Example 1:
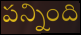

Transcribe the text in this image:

పన్నింది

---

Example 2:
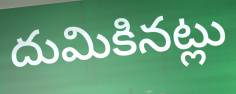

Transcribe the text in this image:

దుమికినట్లు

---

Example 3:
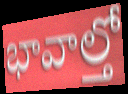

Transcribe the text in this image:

భావాల్తో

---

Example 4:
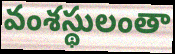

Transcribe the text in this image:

వంశస్థులంతా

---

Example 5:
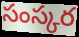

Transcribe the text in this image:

సంస్కర